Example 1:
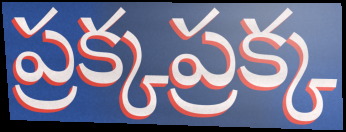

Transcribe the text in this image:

ప్రక్కప్రక్క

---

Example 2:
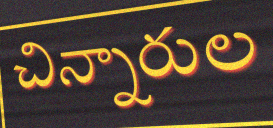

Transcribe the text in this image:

చిన్నారుల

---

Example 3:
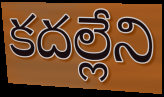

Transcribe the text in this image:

కదల్లేని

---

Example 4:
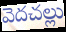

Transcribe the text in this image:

వెదచల్లు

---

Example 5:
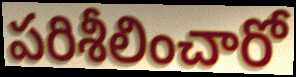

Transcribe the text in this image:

పరిశీలించారో